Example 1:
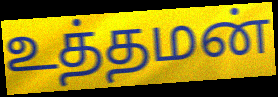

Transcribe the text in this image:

உத்தமன்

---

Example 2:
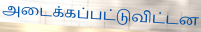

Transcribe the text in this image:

அடைக்கப்பட்டுவிட்டன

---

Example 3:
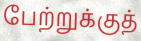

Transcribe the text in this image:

பேற்றுக்குத்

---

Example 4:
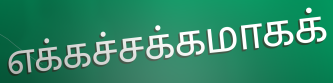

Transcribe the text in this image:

எக்கச்சக்கமாகக்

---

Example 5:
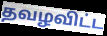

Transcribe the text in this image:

தவழவிட்ட